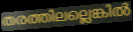
തരത്തിലല്ലെങ്കിൽ